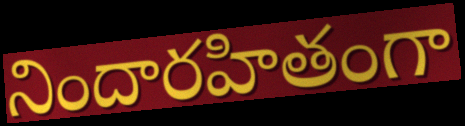
నిందారహితంగా